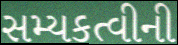
સમ્યકત્વીની